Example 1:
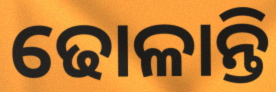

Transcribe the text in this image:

ଢୋଳାନ୍ତି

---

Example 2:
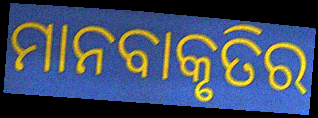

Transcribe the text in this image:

ମାନବାକୃତିର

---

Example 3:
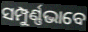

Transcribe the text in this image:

ସମ୍ପୁର୍ଣ୍ଣଭାବେ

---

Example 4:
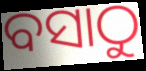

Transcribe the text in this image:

ବସାଠୁ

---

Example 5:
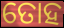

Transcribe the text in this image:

ତୋହ